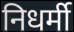
निधर्मी